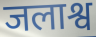
जलाश्व